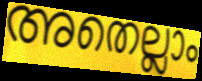
അതെല്ലാം